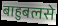
बाहुबलसे